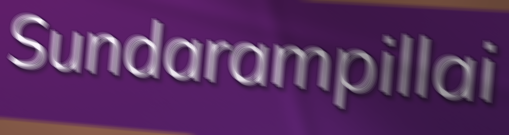
Sundarampillai